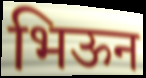
भिऊन